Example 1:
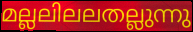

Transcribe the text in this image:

മല്ലലിലലതല്ലുന്നു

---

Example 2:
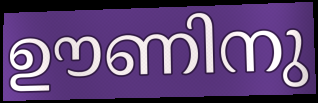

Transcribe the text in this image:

ഊണിനു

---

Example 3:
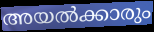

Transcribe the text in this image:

അയൽക്കാരും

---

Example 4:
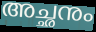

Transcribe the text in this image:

അച്ഛനും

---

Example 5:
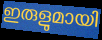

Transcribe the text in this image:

ഇരുളുമായി